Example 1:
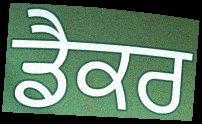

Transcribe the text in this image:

ਡੈਕਰ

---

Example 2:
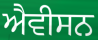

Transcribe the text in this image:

ਐਵੀਸਨ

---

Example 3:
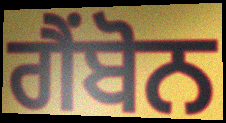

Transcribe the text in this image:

ਗੈਂਬੋਨ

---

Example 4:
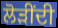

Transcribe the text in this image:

ਲੋੜੀਂਦੀ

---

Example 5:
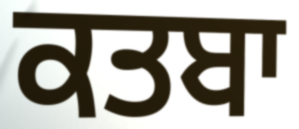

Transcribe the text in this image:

ਕਤਬਾ